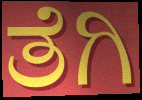
ತೆಗಿ